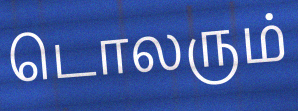
டொலரும்